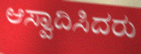
ಆಸ್ವಾದಿಸಿದರು